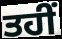
ਤਹੀਂ